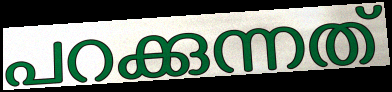
പറക്കുന്നത്